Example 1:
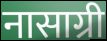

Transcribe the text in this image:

नासाग्री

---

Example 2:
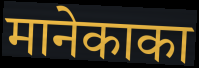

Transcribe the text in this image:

मानेकाका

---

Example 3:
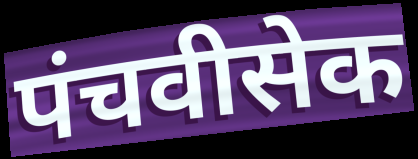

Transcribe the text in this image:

पंचवीसेक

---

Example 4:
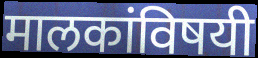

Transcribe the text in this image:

मालकांविषयी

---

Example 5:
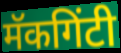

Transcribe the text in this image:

मॅकगिंटी